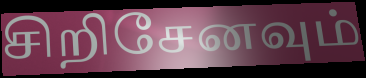
சிறிசேனவும்